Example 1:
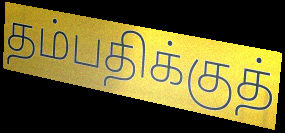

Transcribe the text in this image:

தம்பதிக்குத்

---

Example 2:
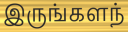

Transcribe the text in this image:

இருங்களந்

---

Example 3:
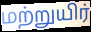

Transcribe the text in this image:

மற்றுயிர்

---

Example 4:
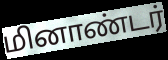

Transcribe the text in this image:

மினாண்டர்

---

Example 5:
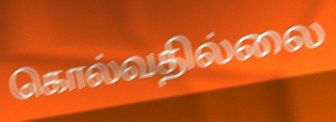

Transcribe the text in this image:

கொல்வதில்லை